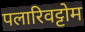
पलारिवट्टोम